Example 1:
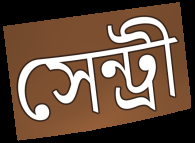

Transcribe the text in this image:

সেন্ট্রী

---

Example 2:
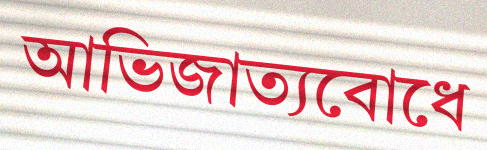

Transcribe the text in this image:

আভিজাত্যবোধে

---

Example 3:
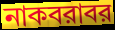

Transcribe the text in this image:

নাকবরাবর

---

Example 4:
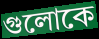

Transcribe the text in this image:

গুলোকে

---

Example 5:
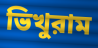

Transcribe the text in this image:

ভিখুরাম